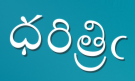
ధరిత్రిఁ